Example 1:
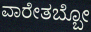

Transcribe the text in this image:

ವಾರೇತಬ್ಬೋ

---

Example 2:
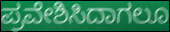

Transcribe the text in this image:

ಪ್ರವೇಶಿಸಿದಾಗಲೂ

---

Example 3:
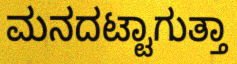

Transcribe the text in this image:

ಮನದಟ್ಟಾಗುತ್ತಾ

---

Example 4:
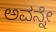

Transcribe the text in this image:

ಅವನ್ನೇ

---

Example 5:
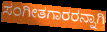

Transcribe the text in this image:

ಸಂಗೀತಗಾರರನ್ನಾಗಿ